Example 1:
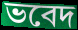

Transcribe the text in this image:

ভবেদ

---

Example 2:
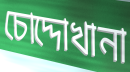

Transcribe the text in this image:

চোদ্দোখানা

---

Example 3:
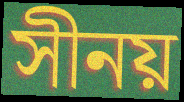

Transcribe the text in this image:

সীনয়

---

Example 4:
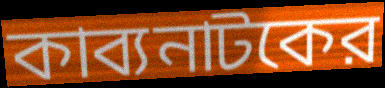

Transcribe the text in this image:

কাব্যনাটকের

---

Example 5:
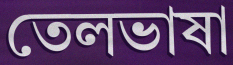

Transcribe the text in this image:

তেলভাষা